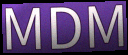
MDM